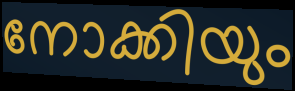
നോക്കിയും